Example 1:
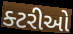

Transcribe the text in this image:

ક્ટરીઓ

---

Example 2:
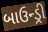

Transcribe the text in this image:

બાઉન્ડ્રી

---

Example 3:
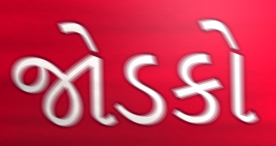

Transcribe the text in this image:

જોડકો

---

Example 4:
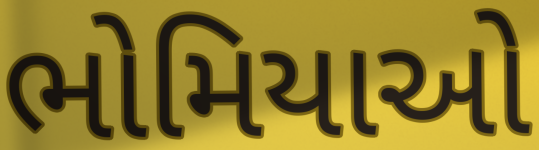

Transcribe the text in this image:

ભોમિયાઓ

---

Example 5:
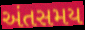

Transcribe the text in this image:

અંતસમય